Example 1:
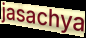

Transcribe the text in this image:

jasachya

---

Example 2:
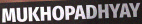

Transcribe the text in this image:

MUKHOPADHYAY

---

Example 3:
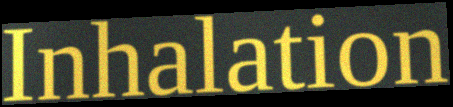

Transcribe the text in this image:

Inhalation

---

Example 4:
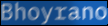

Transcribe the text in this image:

Bhoyrano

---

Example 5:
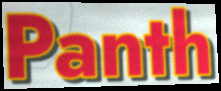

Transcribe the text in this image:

Panth